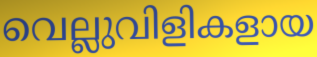
വെല്ലുവിളികളായ